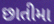
છાતીમા